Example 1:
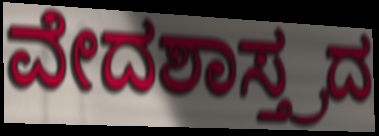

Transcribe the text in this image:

ವೇದಶಾಸ್ತ್ರದ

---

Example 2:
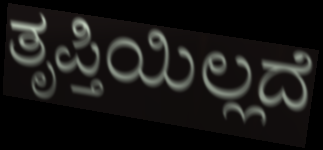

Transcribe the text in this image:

ತೃಪ್ತಿಯಿಲ್ಲದೆ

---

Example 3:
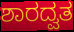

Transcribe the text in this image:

ಶಾರದ್ವತ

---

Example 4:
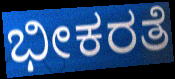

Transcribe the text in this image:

ಭೀಕರತೆ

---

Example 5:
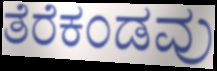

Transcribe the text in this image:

ತೆರೆಕಂಡವು